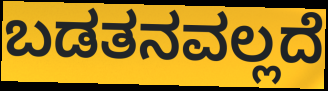
ಬಡತನವಲ್ಲದೆ